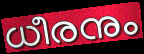
ധീരനും